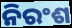
ନିରଂଶ